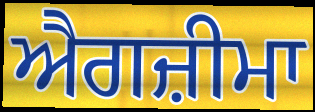
ਐਗਜ਼ੀਮਾ